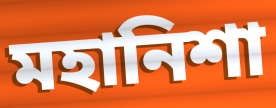
মহানিশা